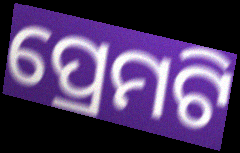
ପ୍ରେମଟି